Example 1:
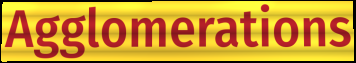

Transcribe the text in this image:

Agglomerations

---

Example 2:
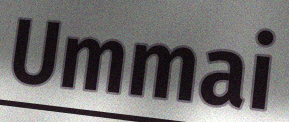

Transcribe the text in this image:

Ummai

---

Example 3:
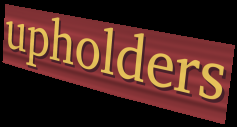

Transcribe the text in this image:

upholders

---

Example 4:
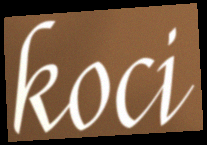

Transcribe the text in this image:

koci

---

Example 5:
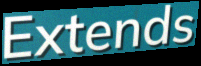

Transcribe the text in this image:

Extends